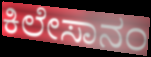
ಕಿಲೇಸಾನಂ